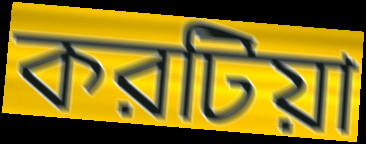
করটিয়া